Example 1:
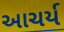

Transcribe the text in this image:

આચર્ય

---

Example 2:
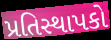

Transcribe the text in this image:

પ્રતિસ્થાપકો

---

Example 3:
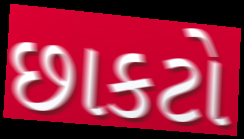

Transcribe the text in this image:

છાકટો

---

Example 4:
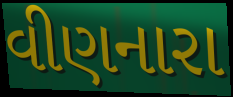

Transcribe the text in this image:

વીણનારા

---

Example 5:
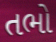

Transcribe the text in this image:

તભો